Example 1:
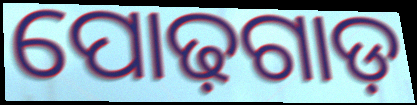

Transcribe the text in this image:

ପୋଢ଼ଗାଡ଼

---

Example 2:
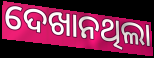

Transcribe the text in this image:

ଦେଖାନଥିଲା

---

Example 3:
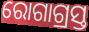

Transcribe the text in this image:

ରୋଗାଗ୍ରସ୍ତ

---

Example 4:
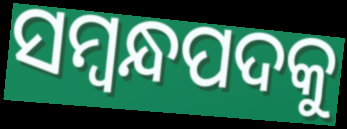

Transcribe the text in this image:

ସମ୍ବନ୍ଧପଦକୁ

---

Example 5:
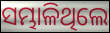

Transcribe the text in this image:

ସମ୍ଭାଳିଥିଲେ